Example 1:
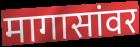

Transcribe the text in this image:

मागासांवर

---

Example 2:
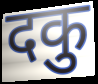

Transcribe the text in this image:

दकु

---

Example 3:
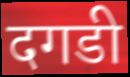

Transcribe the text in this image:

दगडी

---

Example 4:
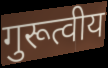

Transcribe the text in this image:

गुरूत्वीय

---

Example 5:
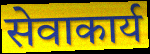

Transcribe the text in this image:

सेवाकार्य